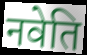
नवेति